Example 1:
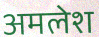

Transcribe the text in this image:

अमलेश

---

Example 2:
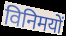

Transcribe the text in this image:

विनिमयों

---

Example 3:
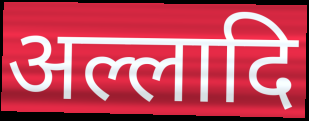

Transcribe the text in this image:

अल्लादि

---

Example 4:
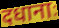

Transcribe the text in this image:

दधानाः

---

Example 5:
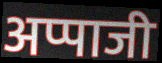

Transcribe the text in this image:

अप्पाजी